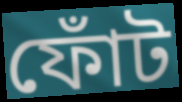
ফোঁট